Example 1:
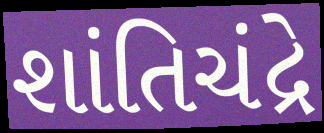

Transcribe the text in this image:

શાંતિચંદ્રે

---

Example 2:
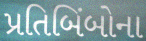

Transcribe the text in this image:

પ્રતિબિંબોના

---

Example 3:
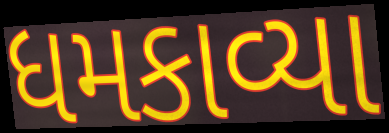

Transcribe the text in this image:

ધમકાવ્યા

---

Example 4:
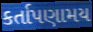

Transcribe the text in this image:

કર્તાપણામય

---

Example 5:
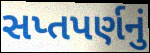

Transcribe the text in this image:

સપ્તપર્ણનું